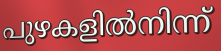
പുഴകളിൽനിന്ന്